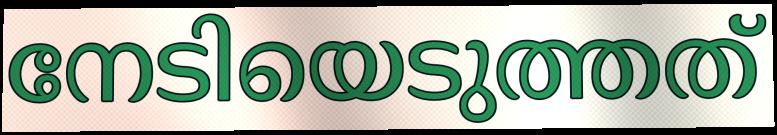
നേടിയെടുത്തത്